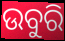
ଉବୁରି